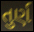
તુર્ણ